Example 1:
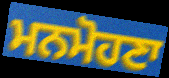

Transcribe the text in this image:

ਮਨਮੋਹਣਾ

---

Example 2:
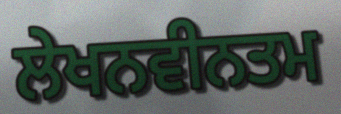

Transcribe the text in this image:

ਲੇਖਨਵੀਨਤਮ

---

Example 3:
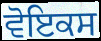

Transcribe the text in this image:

ਵੋਇਕਸ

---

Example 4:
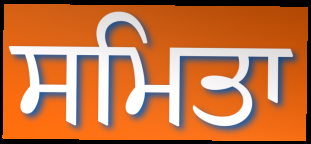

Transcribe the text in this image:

ਸਮਿਤਾ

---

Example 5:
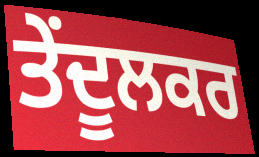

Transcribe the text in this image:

ਤੇਂਦੂਲਕਰ